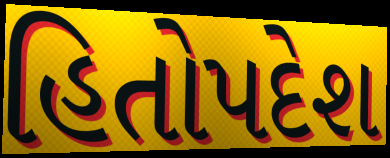
હિતોપદેશ